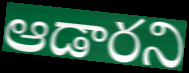
ఆడారని